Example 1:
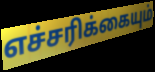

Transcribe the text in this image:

எச்சரிக்கையும்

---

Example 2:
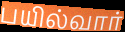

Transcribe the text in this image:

பயில்வார்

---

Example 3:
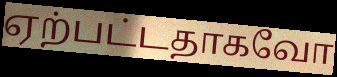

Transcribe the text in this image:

ஏற்பட்டதாகவோ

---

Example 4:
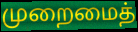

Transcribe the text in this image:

முறைமைத்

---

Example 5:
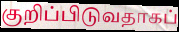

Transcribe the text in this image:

குறிப்பிடுவதாகப்